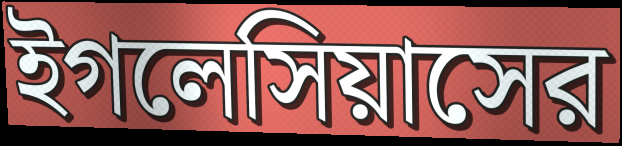
ইগলেসিয়াসের